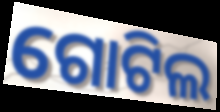
ଗୋଟିଲ